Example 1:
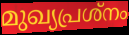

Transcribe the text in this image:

മുഖ്യപ്രശ്നം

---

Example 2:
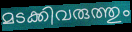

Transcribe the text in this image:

മടക്കിവരുത്തും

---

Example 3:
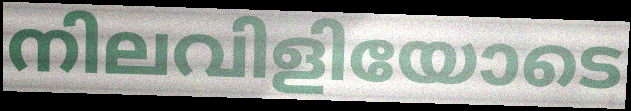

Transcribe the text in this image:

നിലവിളിയോടെ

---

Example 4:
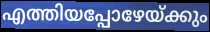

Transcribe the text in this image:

എത്തിയപ്പോഴേയ്ക്കും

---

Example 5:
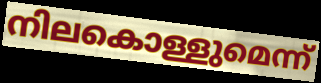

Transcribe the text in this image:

നിലകൊള്ളുമെന്ന്